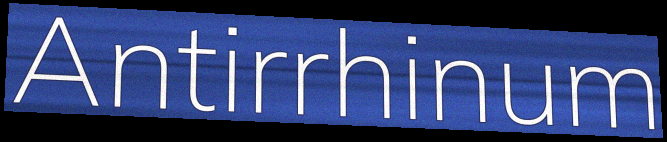
Antirrhinum